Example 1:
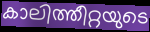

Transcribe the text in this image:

കാലിത്തീറ്റയുടെ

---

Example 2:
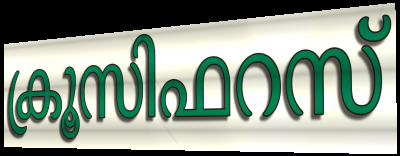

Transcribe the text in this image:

ക്രൂസിഫറസ്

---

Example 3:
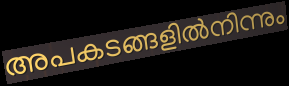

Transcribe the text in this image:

അപകടങ്ങളിൽനിന്നും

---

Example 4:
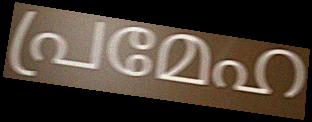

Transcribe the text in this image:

പ്രമേഹ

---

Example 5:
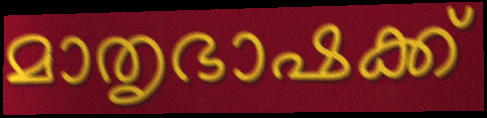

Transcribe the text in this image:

മാതൃഭാഷക്ക്